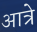
आत्रे